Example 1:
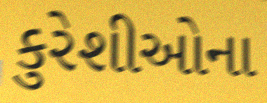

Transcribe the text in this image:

કુરેશીઓના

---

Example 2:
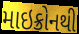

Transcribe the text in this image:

માઇક્રોનથી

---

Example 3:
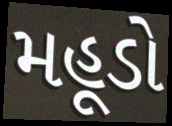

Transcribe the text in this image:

મહૂડો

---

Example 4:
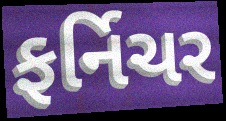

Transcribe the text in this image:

ફર્નિચર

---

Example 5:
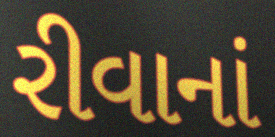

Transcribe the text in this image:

રીવાનાં